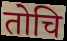
तोचि